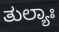
ತುಲ್ಯಾಃ